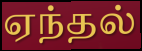
ஏந்தல்